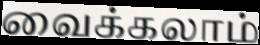
வைக்கலாம்